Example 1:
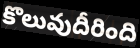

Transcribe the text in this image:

కొలువుదీరింది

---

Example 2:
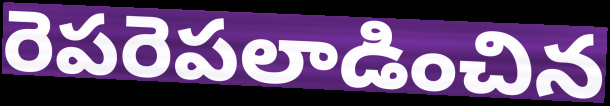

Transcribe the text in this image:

రెపరెపలాడించిన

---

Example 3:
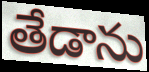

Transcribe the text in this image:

తేడాను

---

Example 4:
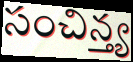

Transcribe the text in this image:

సంచిన్త్య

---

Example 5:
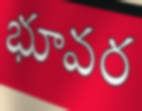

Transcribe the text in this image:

భూవర